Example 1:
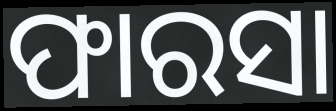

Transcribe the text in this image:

ଫାରସା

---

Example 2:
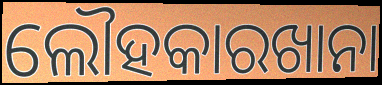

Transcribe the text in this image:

ଲୌହକାରଖାନା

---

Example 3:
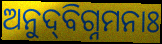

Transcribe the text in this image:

ଅନୁଦ୍‌ବିଗ୍ନମନାଃ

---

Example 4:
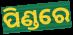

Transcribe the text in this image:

ପିଣ୍ଡରେ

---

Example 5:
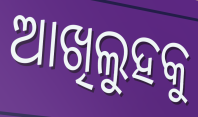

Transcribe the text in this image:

ଆଖିଲୁହକୁ